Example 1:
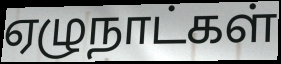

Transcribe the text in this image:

ஏழுநாட்கள்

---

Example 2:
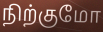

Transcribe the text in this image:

நிற்குமோ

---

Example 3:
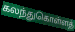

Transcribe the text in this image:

கலந்துகொள்ளத்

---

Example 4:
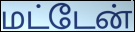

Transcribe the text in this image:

மட்டேன்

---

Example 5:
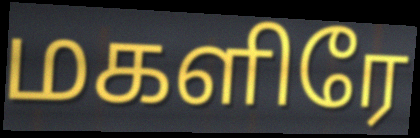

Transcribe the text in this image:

மகளிரே